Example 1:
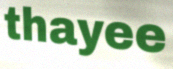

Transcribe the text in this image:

thayee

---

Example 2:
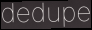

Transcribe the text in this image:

dedupe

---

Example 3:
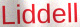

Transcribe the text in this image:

Liddell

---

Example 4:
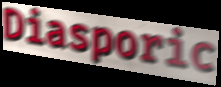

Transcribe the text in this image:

Diasporic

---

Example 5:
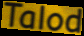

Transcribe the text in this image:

Talod